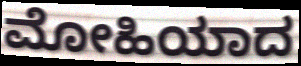
ಮೋಹಿಯಾದ